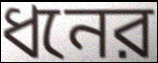
ধনের